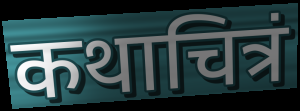
कथाचित्रं